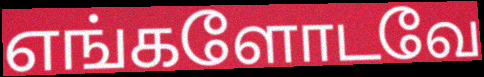
எங்களோடவே